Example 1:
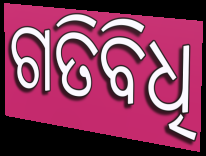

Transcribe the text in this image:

ଗତିବିଧି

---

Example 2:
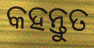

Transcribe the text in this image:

କହନ୍ତୁତ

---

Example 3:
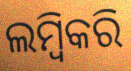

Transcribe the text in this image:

ଲମ୍ବିକରି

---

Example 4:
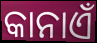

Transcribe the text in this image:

କାନାଏଁ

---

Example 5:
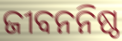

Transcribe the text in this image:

ଜୀବନନିଷ୍ଠ